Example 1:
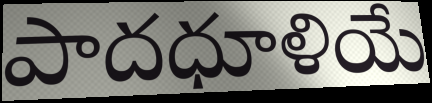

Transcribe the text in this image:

పాదధూళియే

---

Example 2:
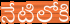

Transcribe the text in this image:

నేటిలోకి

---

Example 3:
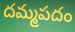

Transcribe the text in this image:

దమ్మపదం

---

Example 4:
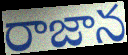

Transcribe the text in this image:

రాజాన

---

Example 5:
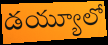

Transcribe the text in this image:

డయ్యూలో